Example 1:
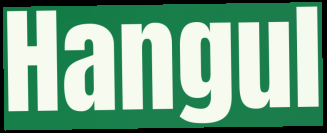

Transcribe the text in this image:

Hangul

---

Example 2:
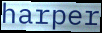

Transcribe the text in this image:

harper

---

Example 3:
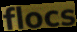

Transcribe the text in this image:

flocs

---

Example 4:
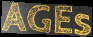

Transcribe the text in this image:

AGEs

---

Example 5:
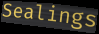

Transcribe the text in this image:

Sealings